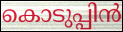
കൊടുപ്പിൻ